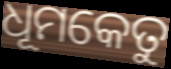
ଧୂମକେତୁ